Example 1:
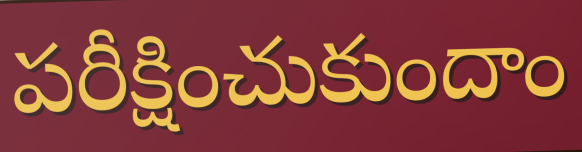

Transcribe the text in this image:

పరీక్షించుకుందాం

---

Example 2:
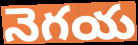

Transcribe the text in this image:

నెగయ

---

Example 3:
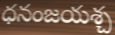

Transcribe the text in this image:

ధనంజయశ్చ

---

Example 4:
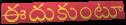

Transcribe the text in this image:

ఈదుకుంటూ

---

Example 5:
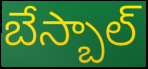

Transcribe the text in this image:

బేస్బాల్